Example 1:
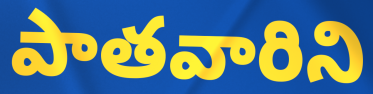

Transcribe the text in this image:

పాతవారిని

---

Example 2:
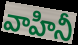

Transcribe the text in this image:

వాహినీ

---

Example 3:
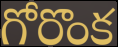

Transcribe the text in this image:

గోరొంక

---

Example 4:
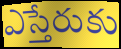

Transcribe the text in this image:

ఎస్తేరుకు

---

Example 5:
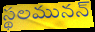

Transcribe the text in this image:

స్థలమునన్